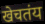
खेचतंय